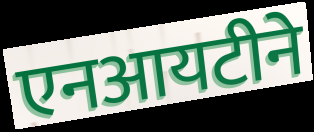
एनआयटीने